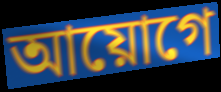
আয়োগে